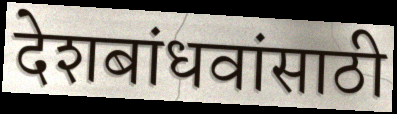
देशबांधवांसाठी